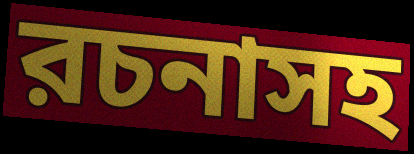
রচনাসহ